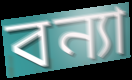
বন্যা